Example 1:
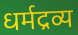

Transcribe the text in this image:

धर्मद्रव्य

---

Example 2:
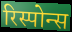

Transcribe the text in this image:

रिस्पोन्स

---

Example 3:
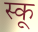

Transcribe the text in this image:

स्कू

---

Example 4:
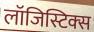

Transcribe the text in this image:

लॉजिस्टिक्‍स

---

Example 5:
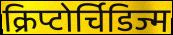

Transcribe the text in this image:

क्रिप्टोर्चिडिज्म